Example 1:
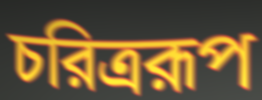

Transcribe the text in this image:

চরিত্ররূপ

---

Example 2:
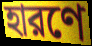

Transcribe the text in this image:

হারণে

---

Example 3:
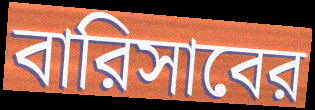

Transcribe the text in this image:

বারিসাবের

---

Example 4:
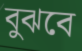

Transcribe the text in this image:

বুঝবে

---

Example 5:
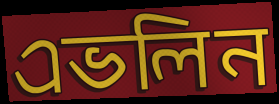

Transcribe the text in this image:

এভলিন